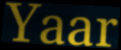
Yaar